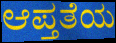
ಆಪ್ತತೆಯ